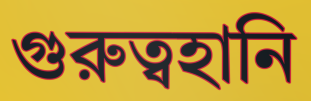
গুরুত্বহানি